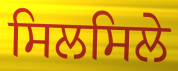
ਸਿਲਸਿਲੇ